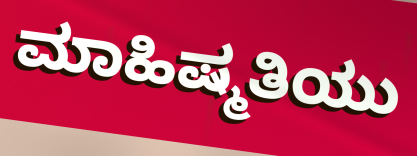
ಮಾಹಿಷ್ಮತಿಯು